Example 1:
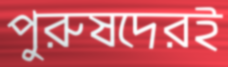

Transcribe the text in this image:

পুরুষদেরই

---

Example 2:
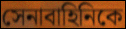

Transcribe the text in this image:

সেনাবাহিনিকে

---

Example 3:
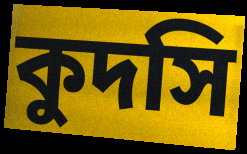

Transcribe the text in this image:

কুদসি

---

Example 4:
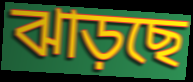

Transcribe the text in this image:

ঝাড়ছে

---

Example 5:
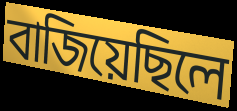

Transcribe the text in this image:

বাজিয়েছিলে